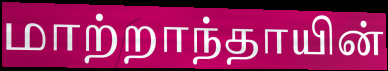
மாற்றாந்தாயின்